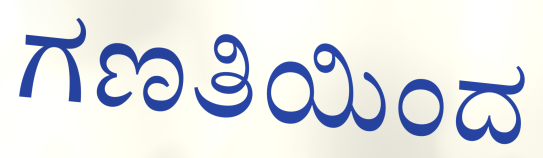
ಗಣತಿಯಿಂದ